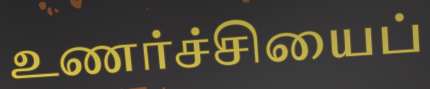
உணர்ச்சியைப்